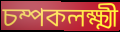
চম্পকলক্ষ্মী